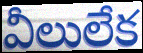
వీలులేక